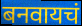
बनवायचं